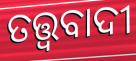
ତତ୍ତ୍ଵବାଦୀ